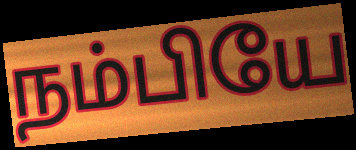
நம்பியே